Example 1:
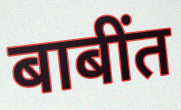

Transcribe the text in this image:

बाबींत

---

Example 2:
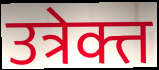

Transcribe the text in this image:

उत्रेक्त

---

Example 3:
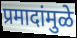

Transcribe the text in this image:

प्रमादांमुळे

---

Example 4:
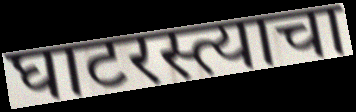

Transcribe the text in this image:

घाटरस्त्याचा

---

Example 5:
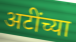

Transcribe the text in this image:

अटींच्या